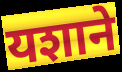
यशाने